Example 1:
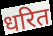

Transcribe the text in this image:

धरित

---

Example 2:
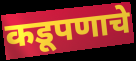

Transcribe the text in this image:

कडूपणाचे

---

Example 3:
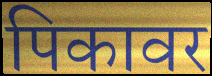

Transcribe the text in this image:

पिकावर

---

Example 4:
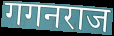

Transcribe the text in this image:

गगनराज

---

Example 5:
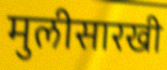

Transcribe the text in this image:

मुलीसारखी